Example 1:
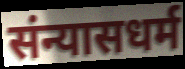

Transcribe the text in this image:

संन्यासधर्म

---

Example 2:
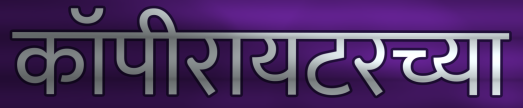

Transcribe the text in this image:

कॉपीरायटरच्या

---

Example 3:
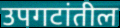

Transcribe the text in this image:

उपगटांतील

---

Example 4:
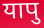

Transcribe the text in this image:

यापु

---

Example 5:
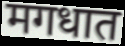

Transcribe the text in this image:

मगधात